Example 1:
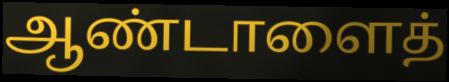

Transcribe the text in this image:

ஆண்டாளைத்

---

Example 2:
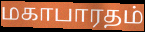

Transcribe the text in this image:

மகாபாரதம்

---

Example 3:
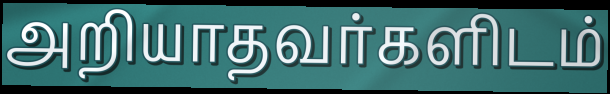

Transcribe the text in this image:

அறியாதவர்களிடம்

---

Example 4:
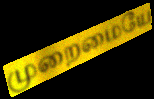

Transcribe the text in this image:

முறைமையே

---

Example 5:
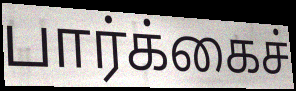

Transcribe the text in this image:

பார்க்கைச்